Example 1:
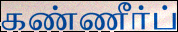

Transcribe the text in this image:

கண்ணீர்ப்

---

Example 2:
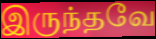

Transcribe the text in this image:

இருந்தவே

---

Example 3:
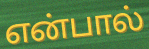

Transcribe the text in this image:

என்பால்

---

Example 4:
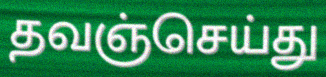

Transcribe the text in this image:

தவஞ்செய்து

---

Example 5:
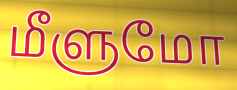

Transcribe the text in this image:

மீளுமோ